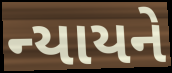
ન્યાયને